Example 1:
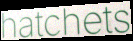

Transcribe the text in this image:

hatchets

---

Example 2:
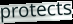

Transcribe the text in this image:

protects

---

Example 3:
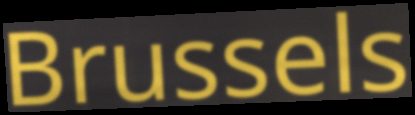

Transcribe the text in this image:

Brussels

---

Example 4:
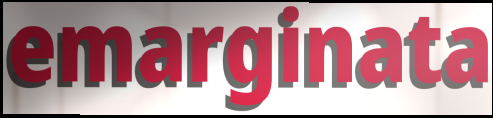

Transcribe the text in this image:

emarginata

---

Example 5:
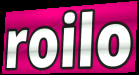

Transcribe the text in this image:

roilo